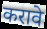
करावे